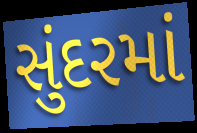
સુંદરમાં